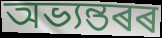
অভ্যন্তৰৰ